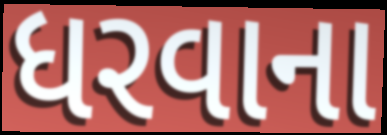
ધરવાના